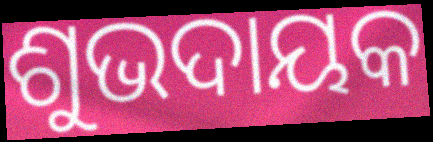
ଶୁଭଦାୟକ